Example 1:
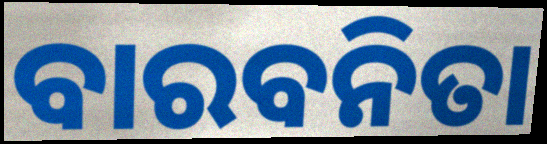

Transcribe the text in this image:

ବାରବନିତା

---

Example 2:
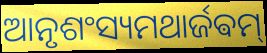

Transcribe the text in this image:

ଆନୃଶଂସ୍ୟମଥାର୍ଜଵମ୍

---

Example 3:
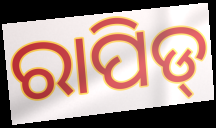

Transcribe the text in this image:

ରାପିଡ୍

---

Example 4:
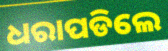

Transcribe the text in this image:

ଧରାପଡିଲେ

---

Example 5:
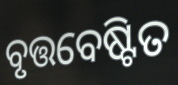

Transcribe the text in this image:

ବୃତ୍ତବେଷ୍ଟିତ